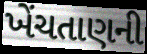
ખેંચતાણની